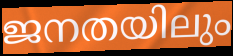
ജനതയിലും